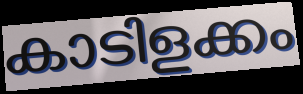
കാടിളക്കം